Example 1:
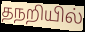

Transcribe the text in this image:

தநறியில்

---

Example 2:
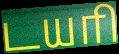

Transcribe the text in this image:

டயரி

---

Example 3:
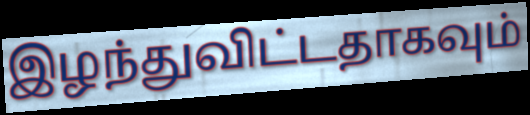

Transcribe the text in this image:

இழந்துவிட்டதாகவும்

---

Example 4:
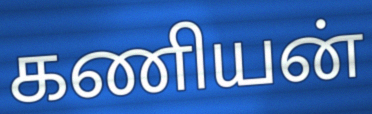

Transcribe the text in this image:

கணியன்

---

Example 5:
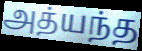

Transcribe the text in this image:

அத்யந்த